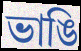
ভাঙি